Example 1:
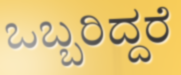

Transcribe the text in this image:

ಒಬ್ಬರಿದ್ದರೆ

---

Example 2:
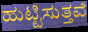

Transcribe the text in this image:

ಹುಟ್ಟಿಸುತ್ತವೆ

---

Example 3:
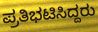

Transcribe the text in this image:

ಪ್ರತಿಭಟಿಸಿದ್ದರು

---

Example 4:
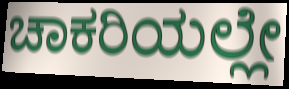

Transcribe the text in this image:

ಚಾಕರಿಯಲ್ಲೇ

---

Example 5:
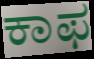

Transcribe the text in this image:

ಕಾಫ